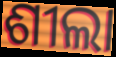
ଶୀଲା